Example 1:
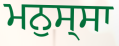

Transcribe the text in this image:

ਮਨੁਸ੍ਸਾ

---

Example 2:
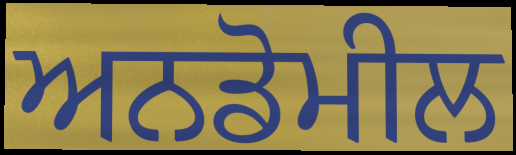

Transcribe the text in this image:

ਅਨਡੋਮੀਲ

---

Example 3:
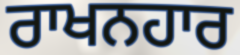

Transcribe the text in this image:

ਰਾਖਨਹਾਰ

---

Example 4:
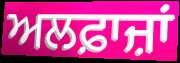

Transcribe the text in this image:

ਅਲਫ਼ਾਜ਼ਾਂ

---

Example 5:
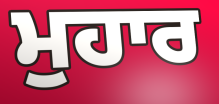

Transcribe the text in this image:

ਮੁਹਾਰ